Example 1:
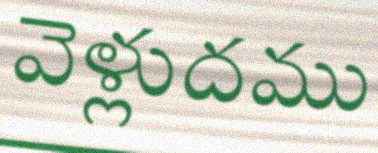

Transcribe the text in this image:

వెళ్లుదము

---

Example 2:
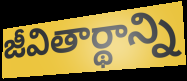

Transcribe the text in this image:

జీవితార్థాన్ని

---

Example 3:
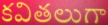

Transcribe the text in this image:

కవితలుగా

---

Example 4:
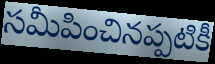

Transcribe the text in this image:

సమీపించినప్పటికీ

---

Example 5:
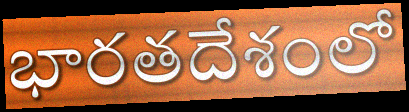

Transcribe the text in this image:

భారతదేశంలో